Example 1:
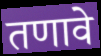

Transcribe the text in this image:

तणावे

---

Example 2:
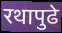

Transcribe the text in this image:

रथापुढे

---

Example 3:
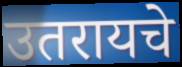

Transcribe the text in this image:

उतरायचे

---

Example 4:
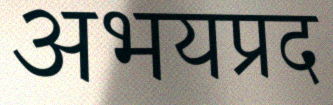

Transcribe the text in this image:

अभयप्रद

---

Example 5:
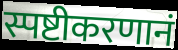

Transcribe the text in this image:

स्पष्टीकरणानं